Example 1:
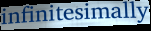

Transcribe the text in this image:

infinitesimally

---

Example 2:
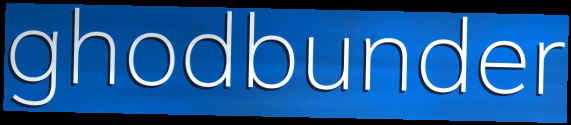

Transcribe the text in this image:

ghodbunder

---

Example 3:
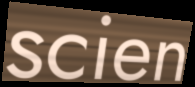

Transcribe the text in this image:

scien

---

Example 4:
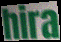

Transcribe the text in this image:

hira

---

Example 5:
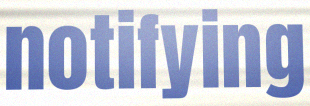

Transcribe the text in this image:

notifying